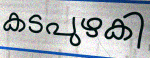
കടപുഴകി